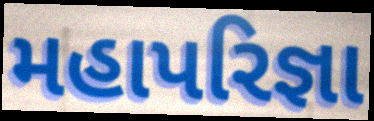
મહાપરિજ્ઞા